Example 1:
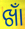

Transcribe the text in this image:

ଖାଁ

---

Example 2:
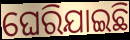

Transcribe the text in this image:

ଘେରିଯାଇଛି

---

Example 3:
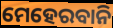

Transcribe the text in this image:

ମେହେରବାନି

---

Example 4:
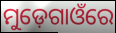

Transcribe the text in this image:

ମୁଡ଼େଗାଓଁରେ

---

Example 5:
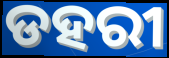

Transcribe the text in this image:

ଡହରୀ